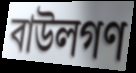
বাউলগণ